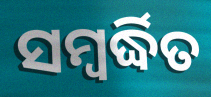
ସମ୍ବର୍ଦ୍ଧିତ